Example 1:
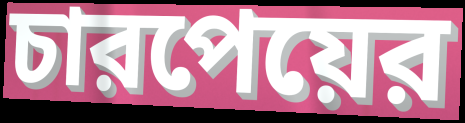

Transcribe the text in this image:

চারপেয়ের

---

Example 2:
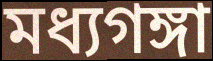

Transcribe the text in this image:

মধ্যগঙ্গা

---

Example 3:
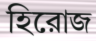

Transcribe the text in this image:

হিরোজ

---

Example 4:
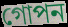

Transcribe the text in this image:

গোপন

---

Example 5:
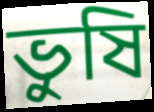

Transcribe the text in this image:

ভুষি